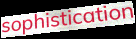
sophistication